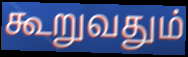
கூறுவதும்